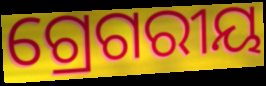
ଗ୍ରେଗରୀୟ